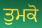
ਤੁਮਕੋ